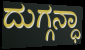
ದುಗ್ಗನ್ಧಾ